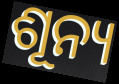
ଶୂନ୍ୟ